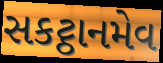
સકટ્ઠાનમેવ